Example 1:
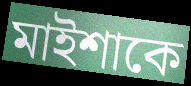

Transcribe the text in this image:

মাইশাকে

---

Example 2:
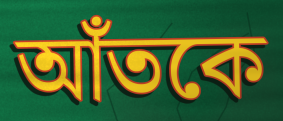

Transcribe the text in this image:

আঁতকে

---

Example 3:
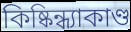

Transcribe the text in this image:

কিষ্কিন্ধ্যাকাণ্ড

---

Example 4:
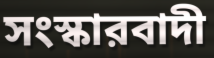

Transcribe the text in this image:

সংস্কারবাদী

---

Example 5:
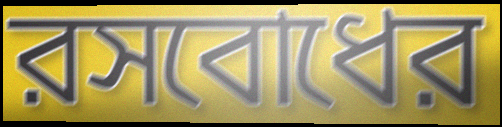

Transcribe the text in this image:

রসবোধের